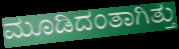
ಮೂಡಿದಂತಾಗಿತ್ತು